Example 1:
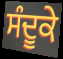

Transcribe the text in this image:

ਸੰਦੂਕੇ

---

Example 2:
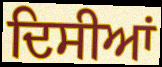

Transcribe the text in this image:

ਦਿਸੀਆਂ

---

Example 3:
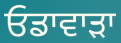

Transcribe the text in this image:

ਓਡਾਵਾੜਾ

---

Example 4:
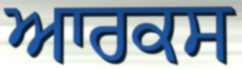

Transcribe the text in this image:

ਆਰਕਸ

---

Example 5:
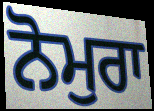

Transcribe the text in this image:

ਨੋਮੁਰਾ